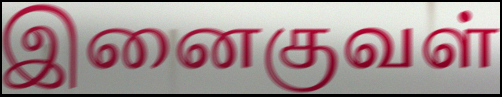
இனைகுவள்